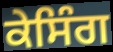
ਕੇਸਿੰਗ